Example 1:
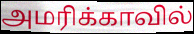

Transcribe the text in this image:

அமரிக்காவில்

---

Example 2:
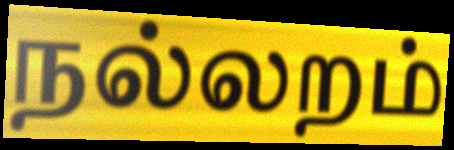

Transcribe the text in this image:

நல்லறம்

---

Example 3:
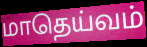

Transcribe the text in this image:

மாதெய்வம்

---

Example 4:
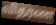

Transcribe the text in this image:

விதரண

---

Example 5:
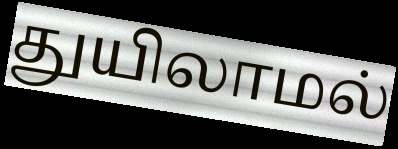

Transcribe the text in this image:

துயிலாமல்